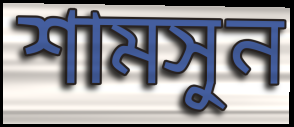
শামসুন